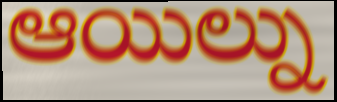
ఆయిల్ను